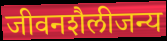
जीवनशैलीजन्य